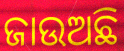
ଜାଉଅଛି